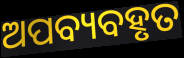
ଅପବ୍ୟବହୃତ